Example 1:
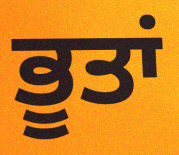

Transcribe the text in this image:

ਭੂਤਾਂ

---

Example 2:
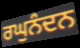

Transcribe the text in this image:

ਰਘੁਨੰਦਨ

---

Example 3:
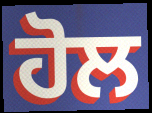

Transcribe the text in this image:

ਹੋਲ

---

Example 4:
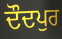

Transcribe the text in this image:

ਦੌਦਪੁਰ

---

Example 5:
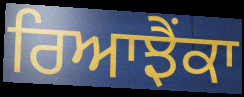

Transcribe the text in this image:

ਰਿਆਝੈਂਕਾ